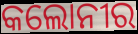
କଲୋନୀର